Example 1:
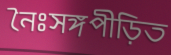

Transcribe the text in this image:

নৈঃসঙ্গপীড়িত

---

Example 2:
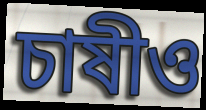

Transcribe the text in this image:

চাষীও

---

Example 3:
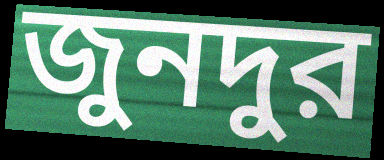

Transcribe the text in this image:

জুনদুর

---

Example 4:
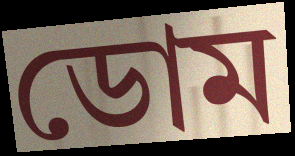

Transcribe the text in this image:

ডোম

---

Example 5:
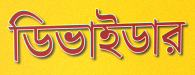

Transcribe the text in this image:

ডিভাইডার